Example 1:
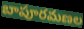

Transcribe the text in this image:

బాపూరమణల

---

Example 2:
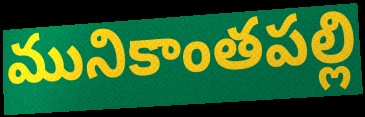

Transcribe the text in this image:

మునికాంతపల్లి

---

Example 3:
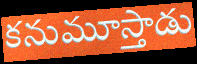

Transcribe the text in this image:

కనుమూస్తాడు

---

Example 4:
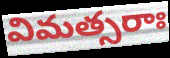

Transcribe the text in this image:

విమత్సరాః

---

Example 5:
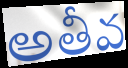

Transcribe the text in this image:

అతీవ